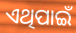
ଏଥିପାଇଁ